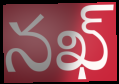
నఖ్